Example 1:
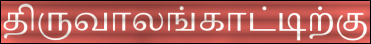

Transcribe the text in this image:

திருவாலங்காட்டிற்கு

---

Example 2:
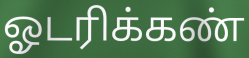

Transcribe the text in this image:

ஓடரிக்கண்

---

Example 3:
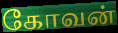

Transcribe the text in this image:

கோவன்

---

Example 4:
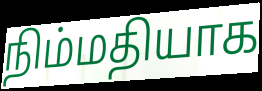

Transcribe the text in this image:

நிம்மதியாக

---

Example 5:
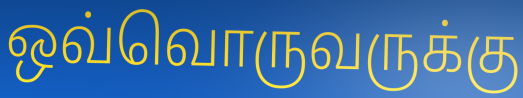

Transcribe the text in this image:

ஒவ்வொருவருக்கு